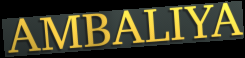
AMBALIYA